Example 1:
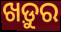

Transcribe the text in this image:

ଖଡ଼ୁର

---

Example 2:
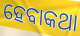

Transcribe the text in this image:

ହେବାକଥା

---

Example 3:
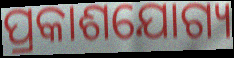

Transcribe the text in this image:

ପ୍ରକାଶଯୋଗ୍ୟ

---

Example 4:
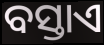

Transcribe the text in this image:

ବସ୍ତାଏ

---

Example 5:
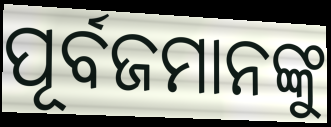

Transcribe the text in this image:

ପୂର୍ବଜମାନଙ୍କୁ